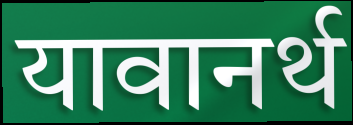
यावानर्थ